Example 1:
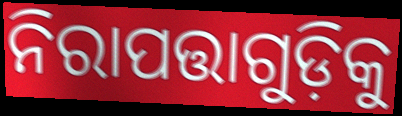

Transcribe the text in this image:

ନିରାପତ୍ତାଗୁଡ଼ିକୁ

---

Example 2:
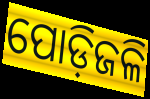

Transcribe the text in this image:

ପୋଡ଼ିଜଳି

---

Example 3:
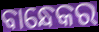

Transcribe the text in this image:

ବାନ୍ଧେକର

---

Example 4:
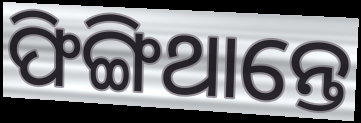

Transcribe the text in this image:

ଫିଙ୍ଗିଥାନ୍ତେ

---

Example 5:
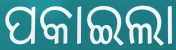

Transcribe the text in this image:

ପକାଇଲା